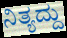
ನಿತ್ಯದ್ದು